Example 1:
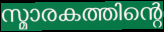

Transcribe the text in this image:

സ്മാരകത്തിന്റെ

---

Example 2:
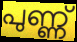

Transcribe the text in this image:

പുണ്ണ്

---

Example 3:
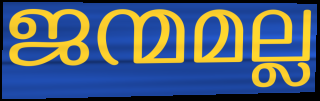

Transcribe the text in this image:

ജന്മമല്ല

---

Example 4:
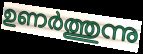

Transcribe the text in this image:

ഉണർത്തുന്നു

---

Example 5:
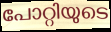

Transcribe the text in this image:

പോറ്റിയുടെ